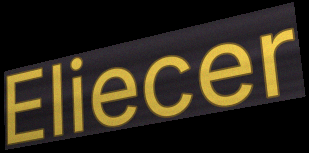
Eliecer